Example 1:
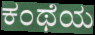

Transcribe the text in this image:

ಕಂಥೆಯ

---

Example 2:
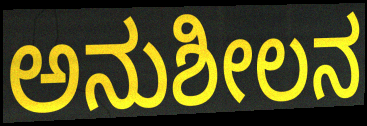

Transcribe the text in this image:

ಅನುಶೀಲನ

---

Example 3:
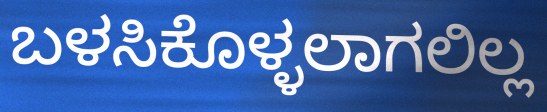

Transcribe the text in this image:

ಬಳಸಿಕೊಳ್ಳಲಾಗಲಿಲ್ಲ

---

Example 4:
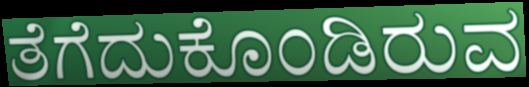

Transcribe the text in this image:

ತೆಗೆದುಕೊಂಡಿರುವ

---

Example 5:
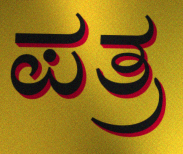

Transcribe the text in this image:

ಪತ್ರ